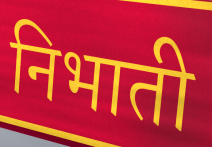
निभाती